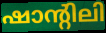
ഷാന്റിലി